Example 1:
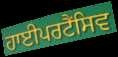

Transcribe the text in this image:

ਹਾਈਪਰਟੈਂਸਿਵ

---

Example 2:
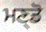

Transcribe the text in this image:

ਮਣ੍ਡੋ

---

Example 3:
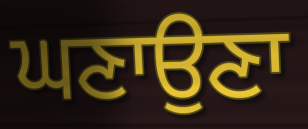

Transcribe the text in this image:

ਘਣਾਉਣਾ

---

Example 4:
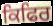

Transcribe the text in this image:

ਕਿਫਿਰ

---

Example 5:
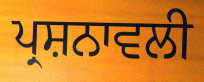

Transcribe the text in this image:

ਪ੍ਰਸ਼ਨਾਵਲੀ